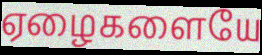
ஏழைகளையே